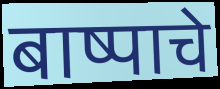
बाष्पाचे